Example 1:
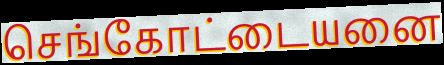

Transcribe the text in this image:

செங்கோட்டையனை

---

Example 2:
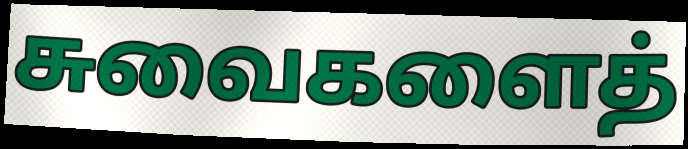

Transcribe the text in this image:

சுவைகளைத்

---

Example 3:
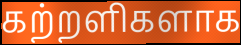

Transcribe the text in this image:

கற்றளிகளாக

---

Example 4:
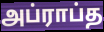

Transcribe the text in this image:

அப்ராப்த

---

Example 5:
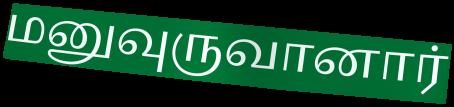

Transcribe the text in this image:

மனுவுருவானார்